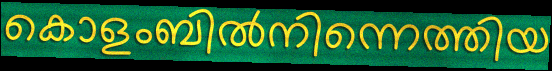
കൊളംബിൽനിന്നെത്തിയ